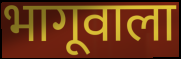
भागूवाला